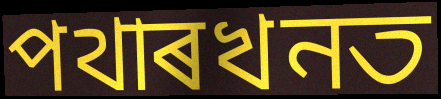
পথাৰখনত